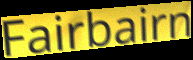
Fairbairn